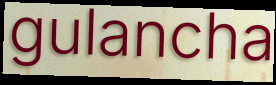
gulancha